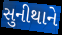
સુનીથાને